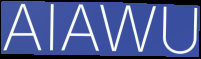
AIAWU